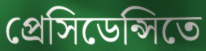
প্রেসিডেন্সিতে